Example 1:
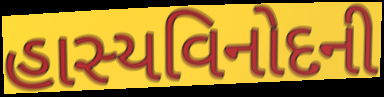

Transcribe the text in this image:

હાસ્યવિનોદની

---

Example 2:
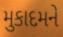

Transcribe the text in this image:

મુકાદમને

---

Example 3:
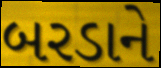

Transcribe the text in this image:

બરડાને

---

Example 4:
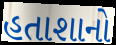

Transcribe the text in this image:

હતાશાનો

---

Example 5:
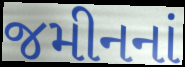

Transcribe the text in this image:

જમીનનાં